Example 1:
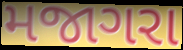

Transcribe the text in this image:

મજાગરા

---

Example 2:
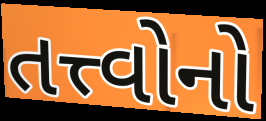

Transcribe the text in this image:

તત્ત્વોનો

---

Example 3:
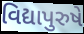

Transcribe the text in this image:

વિદ્યાપુરુષે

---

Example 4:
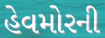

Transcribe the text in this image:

હેવમોરની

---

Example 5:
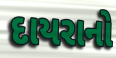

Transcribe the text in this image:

દાયરાનો